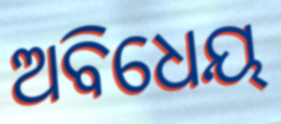
ଅବିଧେୟ